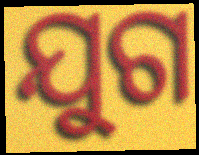
ଯୁଗ